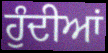
ਹੁੰਦੀਆਂ